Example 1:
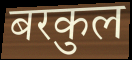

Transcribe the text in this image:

बरकुल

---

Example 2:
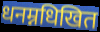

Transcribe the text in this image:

धनम्नधिखित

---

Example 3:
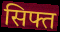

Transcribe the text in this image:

सिफ्त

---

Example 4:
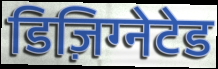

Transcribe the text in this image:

डिज़िग्नेटेड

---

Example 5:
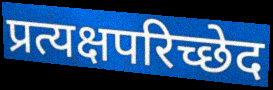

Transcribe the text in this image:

प्रत्यक्षपरिच्छेद